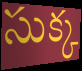
సుక్క